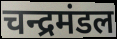
चन्द्रमंडल